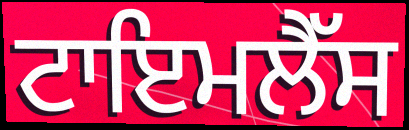
ਟਾਇਮਲੈੱਸ